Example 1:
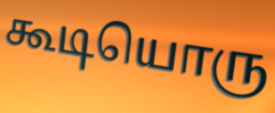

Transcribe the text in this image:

கூடியொரு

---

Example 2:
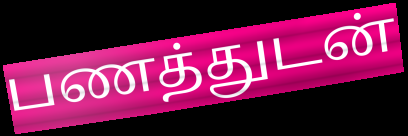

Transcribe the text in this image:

பணத்துடன்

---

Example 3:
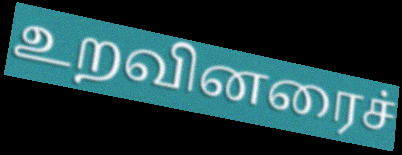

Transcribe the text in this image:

உறவினரைச்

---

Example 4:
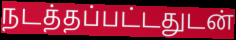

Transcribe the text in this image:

நடத்தப்பட்டதுடன்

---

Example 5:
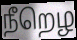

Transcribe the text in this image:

நீறெழ